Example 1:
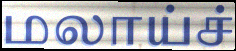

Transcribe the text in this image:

மலாய்ச்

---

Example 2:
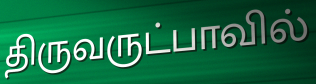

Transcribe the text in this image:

திருவருட்பாவில்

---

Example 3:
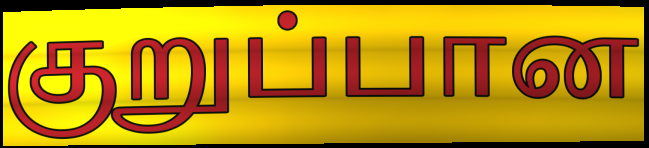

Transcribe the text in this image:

குறுப்பான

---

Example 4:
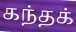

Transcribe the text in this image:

கந்தக்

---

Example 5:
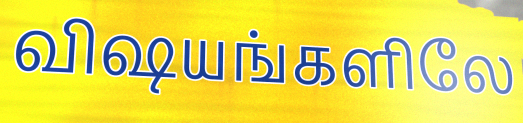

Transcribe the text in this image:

விஷயங்களிலே